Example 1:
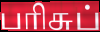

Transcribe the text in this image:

பரிசுப்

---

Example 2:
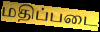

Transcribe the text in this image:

மதிப்படை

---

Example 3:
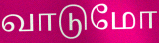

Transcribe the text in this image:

வாடுமோ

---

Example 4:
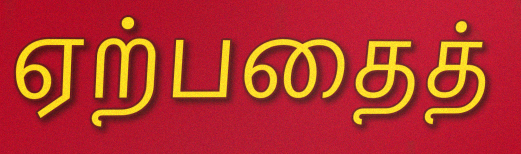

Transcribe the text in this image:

ஏற்பதைத்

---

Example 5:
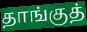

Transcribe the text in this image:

தாங்குத்